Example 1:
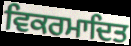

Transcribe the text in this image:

ਵਿਕਰਮਾਦਿਤ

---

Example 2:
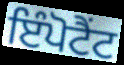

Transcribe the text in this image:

ਇੰਪੋਟੈਂਟ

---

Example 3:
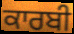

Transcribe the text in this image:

ਕਾਰਬੀ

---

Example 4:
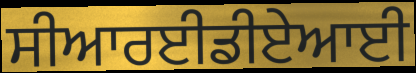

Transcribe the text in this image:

ਸੀਆਰਈਡੀਏਆਈ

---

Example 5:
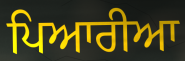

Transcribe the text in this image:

ਪਿਆਰੀਆ